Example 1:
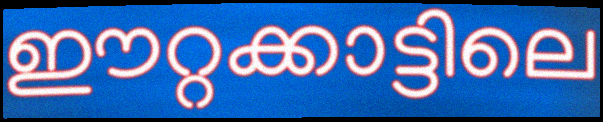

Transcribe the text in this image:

ഈറ്റക്കാട്ടിലെ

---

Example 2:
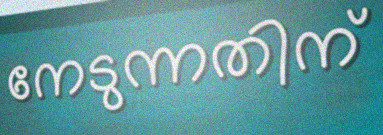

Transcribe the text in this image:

നേടുന്നതിന്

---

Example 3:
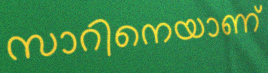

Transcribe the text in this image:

സാറിനെയാണ്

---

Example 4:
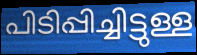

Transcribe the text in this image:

പിടിപ്പിച്ചിട്ടുള്ള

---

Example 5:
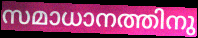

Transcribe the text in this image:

സമാധാനത്തിനു